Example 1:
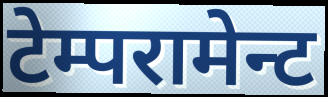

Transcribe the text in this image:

टेम्परामेन्ट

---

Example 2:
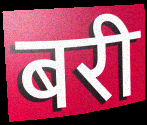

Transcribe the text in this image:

बरी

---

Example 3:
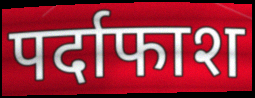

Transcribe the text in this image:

पर्दाफाश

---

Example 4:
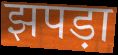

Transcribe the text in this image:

झपड़ा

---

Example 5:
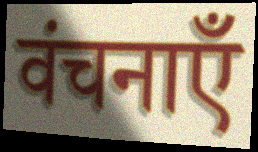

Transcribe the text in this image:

वंचनाएँ